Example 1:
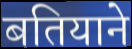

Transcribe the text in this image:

बतियाने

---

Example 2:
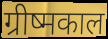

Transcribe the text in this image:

ग्रीष्मकाल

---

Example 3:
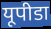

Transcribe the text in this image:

यूपीडा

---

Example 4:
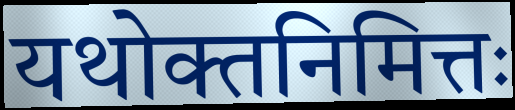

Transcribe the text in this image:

यथोक्तनिमित्तः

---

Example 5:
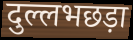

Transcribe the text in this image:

दुल्लभछड़ा